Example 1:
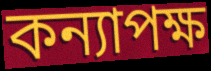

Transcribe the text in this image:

কন্যাপক্ষ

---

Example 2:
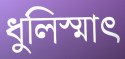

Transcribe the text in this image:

ধুলিস্মাৎ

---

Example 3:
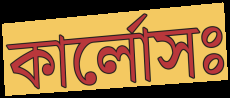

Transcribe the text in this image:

কার্লোসঃ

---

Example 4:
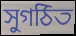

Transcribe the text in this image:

সুগঠিত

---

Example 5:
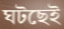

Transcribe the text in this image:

ঘটছেই